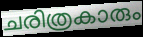
ചരിത്രകാരും